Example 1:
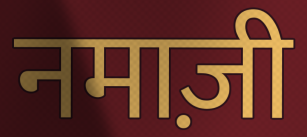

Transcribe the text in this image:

नमाज़ी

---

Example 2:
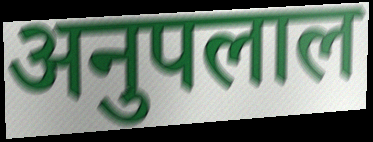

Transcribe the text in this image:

अनुपलाल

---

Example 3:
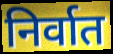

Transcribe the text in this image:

निर्वात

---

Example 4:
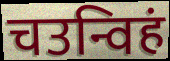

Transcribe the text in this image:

चउन्विहं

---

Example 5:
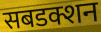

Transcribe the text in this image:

सबडक्शन